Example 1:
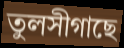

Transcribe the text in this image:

তুলসীগাছে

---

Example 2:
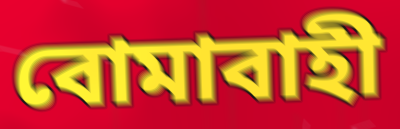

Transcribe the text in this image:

বোমাবাহী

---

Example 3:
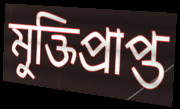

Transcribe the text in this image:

মুক্তিপ্রাপ্ত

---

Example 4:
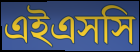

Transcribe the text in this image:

এইএসসি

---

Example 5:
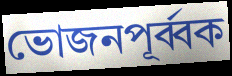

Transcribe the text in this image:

ভোজনপূর্ব্বক